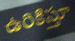
ఉరికిస్తూ